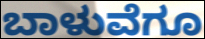
ಬಾಳುವೆಗೂ